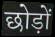
छोड़ों